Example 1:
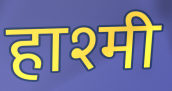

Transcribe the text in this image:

हाश्मी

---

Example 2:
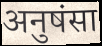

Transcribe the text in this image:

अनुषंसा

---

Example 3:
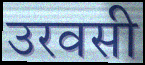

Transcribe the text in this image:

उरवसी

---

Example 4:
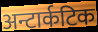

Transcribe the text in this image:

अन्टार्कटिक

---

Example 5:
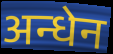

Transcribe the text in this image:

अन्धेन